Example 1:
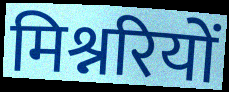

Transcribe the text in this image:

मिश्नरियों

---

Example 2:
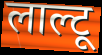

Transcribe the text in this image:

लाल्टू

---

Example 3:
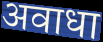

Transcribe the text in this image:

अवाधा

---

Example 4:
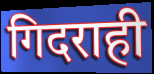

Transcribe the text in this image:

गिदराही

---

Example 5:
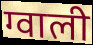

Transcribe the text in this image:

ग्वाली